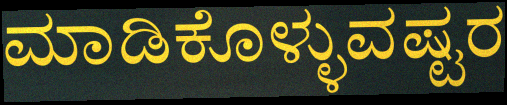
ಮಾಡಿಕೊಳ್ಳುವಷ್ಟರ